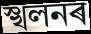
স্খলনৰ